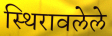
स्थिरावलेले